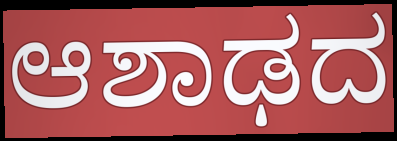
ಆಶಾಢದ